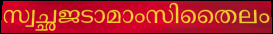
സ്വച്ഛജടാമാംസിതൈലം